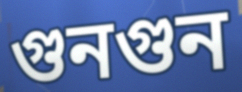
গুনগুন